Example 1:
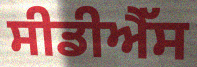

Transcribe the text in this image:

ਸੀਡੀਐੱਸ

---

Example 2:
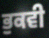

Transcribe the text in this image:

ਭੁਕਵੀ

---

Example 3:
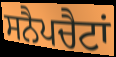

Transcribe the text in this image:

ਸਨੈਪਚੈਟਾਂ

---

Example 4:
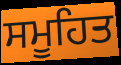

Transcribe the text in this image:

ਸਮੂਹਿਤ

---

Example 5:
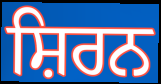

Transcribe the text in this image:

ਸ਼ਿਰਨ